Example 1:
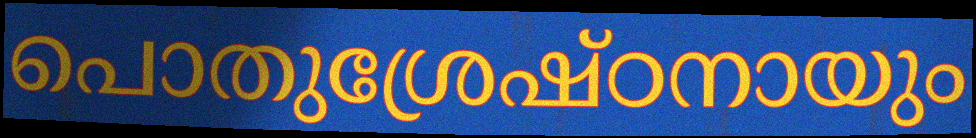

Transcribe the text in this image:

പൊതുശ്രേഷ്ഠനായും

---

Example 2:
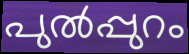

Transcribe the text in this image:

പുൽപ്പുറം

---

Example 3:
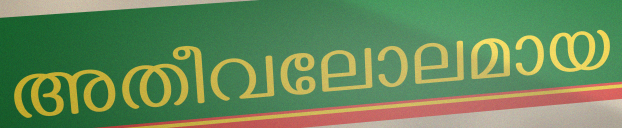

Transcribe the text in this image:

അതീവലോലമായ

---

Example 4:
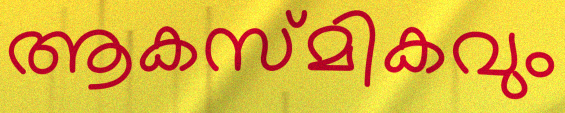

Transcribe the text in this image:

ആകസ്മികവും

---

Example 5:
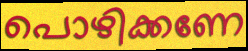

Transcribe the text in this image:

പൊഴിക്കണേ